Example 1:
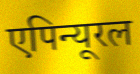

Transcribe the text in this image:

एपिन्यूरल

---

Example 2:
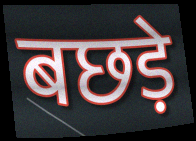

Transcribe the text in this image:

बछड़े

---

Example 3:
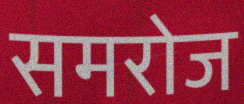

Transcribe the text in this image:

समरोज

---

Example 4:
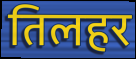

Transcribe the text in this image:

तिलहर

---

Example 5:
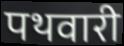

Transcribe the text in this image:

पथवारी